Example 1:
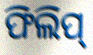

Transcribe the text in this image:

ଫିଲିପ୍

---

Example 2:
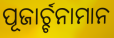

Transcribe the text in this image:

ପୂଜାର୍ଚ୍ଚନାମାନ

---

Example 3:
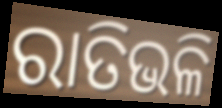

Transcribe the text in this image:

ରାତିଭଳି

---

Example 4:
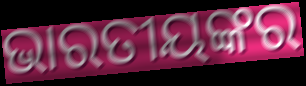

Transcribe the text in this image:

ଭାରତୀୟଙ୍କର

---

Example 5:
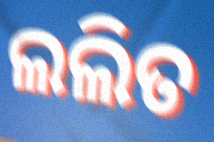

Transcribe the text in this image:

ଲଲିତ